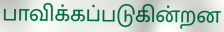
பாவிக்கப்படுகின்றன